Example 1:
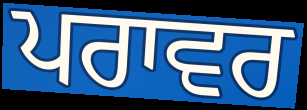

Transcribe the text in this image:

ਪਰਾਵਰ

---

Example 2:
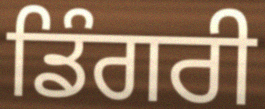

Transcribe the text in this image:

ਡਿੰਗਰੀ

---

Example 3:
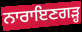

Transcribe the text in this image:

ਨਾਰਾਇਣਗੜ੍ਹ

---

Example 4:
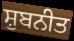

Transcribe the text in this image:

ਸ਼ੁਬਨੀਤ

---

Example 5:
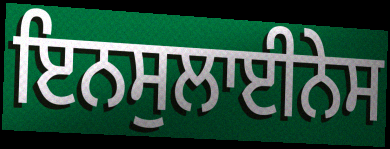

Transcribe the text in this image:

ਇਨਸੁਲਾਈਨੇਸ